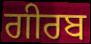
ਗੀਰਬ